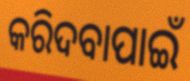
କରିଦବାପାଇଁ